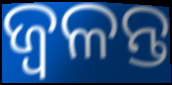
ଜ୍ଵଳନ୍ତ